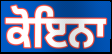
ਕੋਇਨਾ